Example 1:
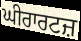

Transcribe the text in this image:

ਘੀਰਾਰਟਜ਼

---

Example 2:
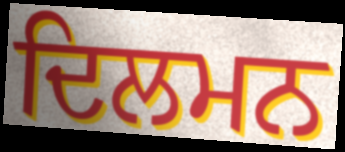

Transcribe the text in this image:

ਦਿਲਮਨ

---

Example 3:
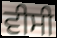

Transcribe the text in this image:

ਵੀਸੀ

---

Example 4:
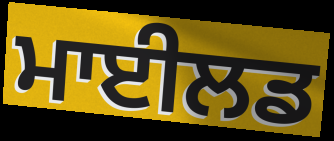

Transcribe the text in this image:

ਮਾਈਲਡ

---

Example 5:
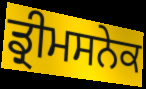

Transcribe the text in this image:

ਡ੍ਰੀਮਸਨੇਕ